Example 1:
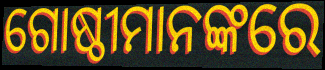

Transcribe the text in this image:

ଗୋଷ୍ଠୀମାନଙ୍କରେ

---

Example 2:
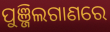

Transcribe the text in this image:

ପୁଞ୍ଜିଲଗାଣରେ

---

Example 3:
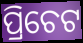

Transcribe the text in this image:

ପ୍ରିଚେଟ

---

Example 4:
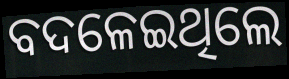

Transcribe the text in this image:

ବଦଳେଇଥିଲେ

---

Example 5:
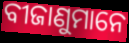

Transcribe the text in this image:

ବୀଜାଣୁମାନେ